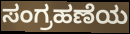
ಸಂಗ್ರಹಣೆಯ